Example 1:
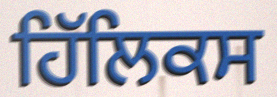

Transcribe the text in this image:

ਹਿੱਲਿਕਸ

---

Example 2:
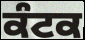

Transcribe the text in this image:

ਕੰਟਕ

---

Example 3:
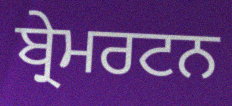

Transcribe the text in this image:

ਬ੍ਰੇਮਰਟਨ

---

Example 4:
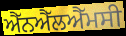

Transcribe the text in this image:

ਐੱਨਐੱਲਐੱਮਸੀ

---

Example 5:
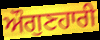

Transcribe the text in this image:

ਔਗੁਣਹਾਰੀ